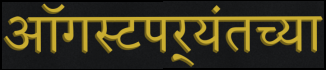
ऑगस्टपर्यंतच्या